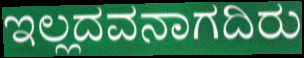
ಇಲ್ಲದವನಾಗದಿರು